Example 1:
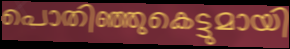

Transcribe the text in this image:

പൊതിഞ്ഞുകെട്ടുമായി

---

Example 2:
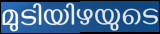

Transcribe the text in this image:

മുടിയിഴയുടെ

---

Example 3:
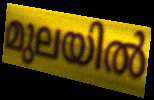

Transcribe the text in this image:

മുലയിൽ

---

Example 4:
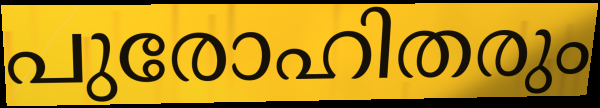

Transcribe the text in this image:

പുരോഹിതരും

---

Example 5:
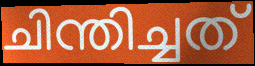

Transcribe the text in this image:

ചിന്തിച്ചത്